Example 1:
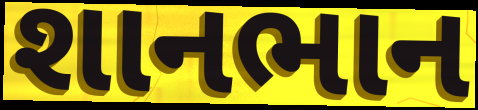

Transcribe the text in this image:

શાનભાન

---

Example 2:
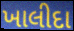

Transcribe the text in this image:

ખાલીદા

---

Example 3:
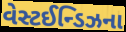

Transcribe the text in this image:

વેસ્ટઈન્ડિઝના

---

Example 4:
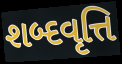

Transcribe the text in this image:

શબ્દવૃત્તિ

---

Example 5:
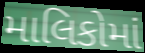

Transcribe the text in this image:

માલિકોમાં